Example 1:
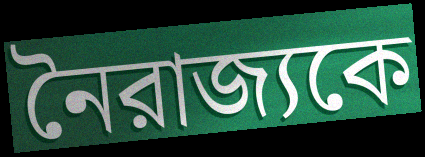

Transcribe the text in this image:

নৈরাজ্যকে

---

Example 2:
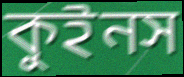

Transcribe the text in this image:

কুইনস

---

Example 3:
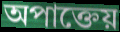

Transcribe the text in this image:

অপাক্তেয়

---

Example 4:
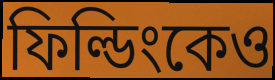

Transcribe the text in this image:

ফিল্ডিংকেও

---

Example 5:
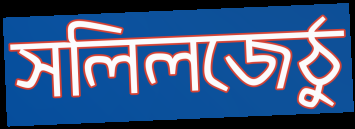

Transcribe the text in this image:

সলিলজেঠু